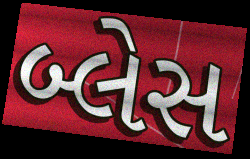
બ્લેસ